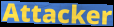
Attacker